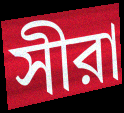
সীরা